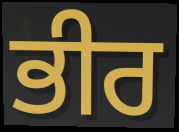
ਭੀਰ